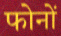
फोनों